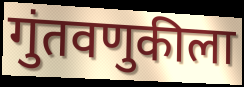
गुंतवणुकीला